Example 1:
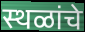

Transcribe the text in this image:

स्थळांचे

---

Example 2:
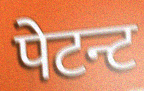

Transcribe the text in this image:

पेटन्ट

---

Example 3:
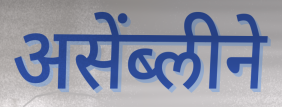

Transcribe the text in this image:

असेंब्लीने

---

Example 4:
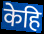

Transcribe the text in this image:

केहि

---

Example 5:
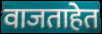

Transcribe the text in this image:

वाजताहेत